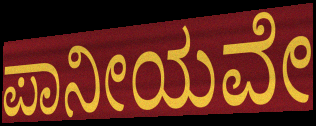
ಪಾನೀಯವೇ